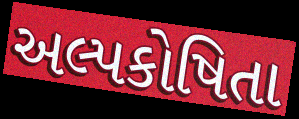
અલ્પકોષિતા